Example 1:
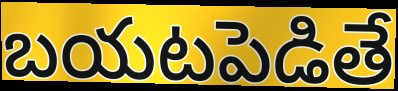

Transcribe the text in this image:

బయటపెడితే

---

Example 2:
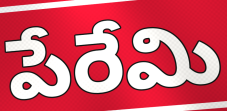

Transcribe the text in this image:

పేరేమి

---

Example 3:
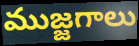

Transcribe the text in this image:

ముజ్జగాలు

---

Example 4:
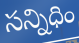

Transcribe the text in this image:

సన్నిధిం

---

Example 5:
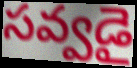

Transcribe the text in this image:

సవ్వడై